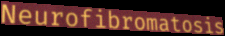
Neurofibromatosis